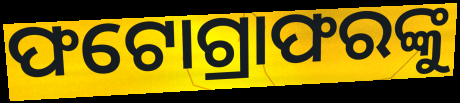
ଫଟୋଗ୍ରାଫରଙ୍କୁ